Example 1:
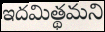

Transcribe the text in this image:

ఇదమిత్థమని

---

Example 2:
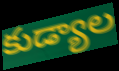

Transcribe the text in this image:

కుడ్యాల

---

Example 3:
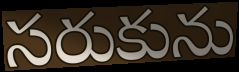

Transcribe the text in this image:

సరుకును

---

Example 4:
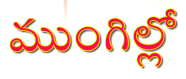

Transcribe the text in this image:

ముంగిల్లో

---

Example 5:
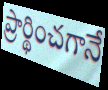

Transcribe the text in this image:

ప్రార్థించగానే